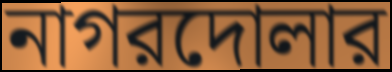
নাগরদোলার